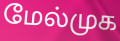
மேல்முக